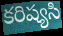
కరిష్యసి